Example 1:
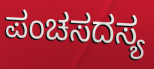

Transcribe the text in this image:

ಪಂಚಸದಸ್ಯ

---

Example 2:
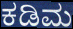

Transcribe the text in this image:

ಕಡಿಮ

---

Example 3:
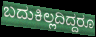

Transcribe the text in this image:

ಬದುಕಿಲ್ಲದಿದ್ದರೂ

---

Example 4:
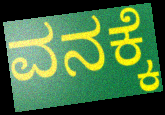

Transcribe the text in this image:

ವನಕ್ಕೆ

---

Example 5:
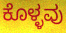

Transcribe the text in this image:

ಕೊಳ್ಳವು